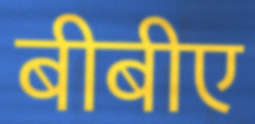
बीबीए